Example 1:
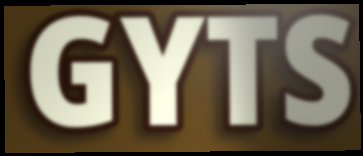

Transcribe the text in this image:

GYTS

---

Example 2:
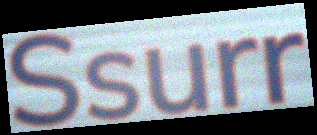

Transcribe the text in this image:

Ssurr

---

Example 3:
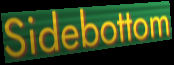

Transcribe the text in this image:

Sidebottom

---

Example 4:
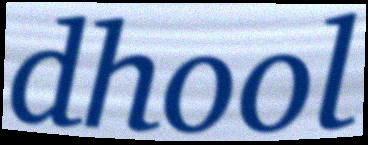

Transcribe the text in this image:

dhool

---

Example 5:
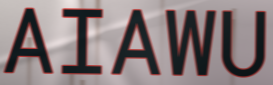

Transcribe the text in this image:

AIAWU